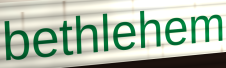
bethlehem